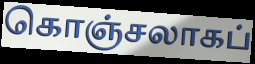
கொஞ்சலாகப்